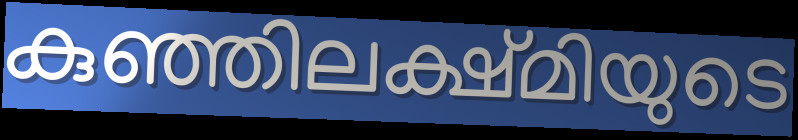
കുഞ്ഞിലക്ഷ്മിയുടെ